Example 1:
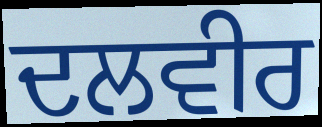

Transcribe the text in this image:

ਦਲਵੀਰ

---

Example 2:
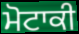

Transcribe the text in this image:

ਮੋਟਾਕੀ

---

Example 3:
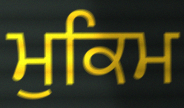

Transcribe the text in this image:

ਮੁਕਿਮ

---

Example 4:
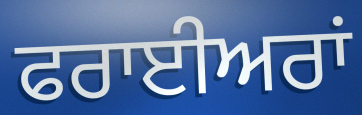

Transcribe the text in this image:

ਫਰਾਈਅਰਾਂ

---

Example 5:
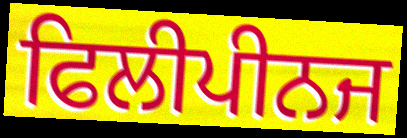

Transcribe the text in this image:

ਫਿਲੀਪੀਨਜ